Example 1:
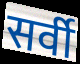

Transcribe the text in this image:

सर्वी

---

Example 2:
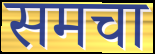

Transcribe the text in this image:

समचा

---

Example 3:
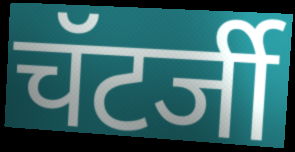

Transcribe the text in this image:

चॅटर्जी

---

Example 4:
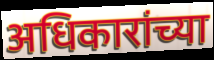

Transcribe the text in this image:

अधिकारांच्या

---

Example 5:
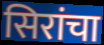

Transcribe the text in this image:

सिरांचा